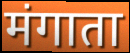
मंगाता